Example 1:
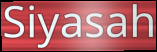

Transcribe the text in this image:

Siyasah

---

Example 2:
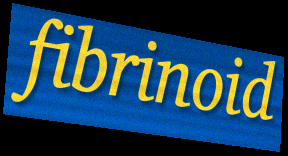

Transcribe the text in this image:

fibrinoid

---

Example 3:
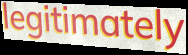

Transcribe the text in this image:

legitimately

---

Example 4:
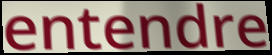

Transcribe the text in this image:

entendre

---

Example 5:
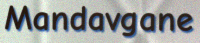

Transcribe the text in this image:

Mandavgane